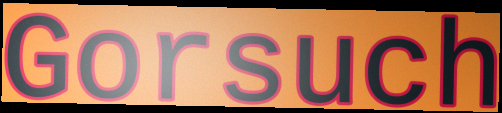
Gorsuch